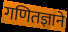
गणितज्ञाने